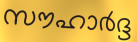
സൗഹാർദ്ദ